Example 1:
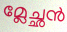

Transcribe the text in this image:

മ്ലേച്ഛൻ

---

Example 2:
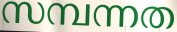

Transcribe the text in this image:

സമ്പന്നത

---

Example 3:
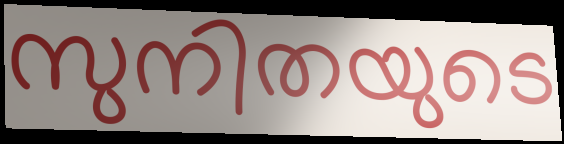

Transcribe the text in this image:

സുനിതയുടെ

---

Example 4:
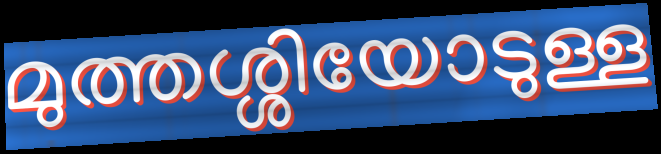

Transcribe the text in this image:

മുത്തശ്ശിയോടുള്ള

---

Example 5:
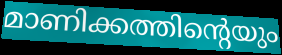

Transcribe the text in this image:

മാണിക്കത്തിന്റെയും